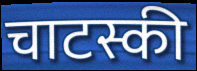
चाटस्की